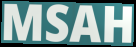
MSAH